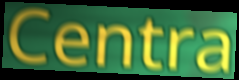
Centra